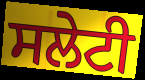
ਸਲੇਟੀ